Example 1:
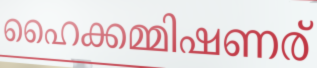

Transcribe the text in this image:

ഹൈക്കമ്മിഷണര്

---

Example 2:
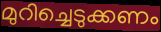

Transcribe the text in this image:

മുറിച്ചെടുക്കണം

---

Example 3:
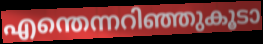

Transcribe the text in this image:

എന്തെന്നറിഞ്ഞുകൂടാ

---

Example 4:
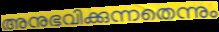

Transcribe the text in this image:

അനുഭവിക്കുന്നതെന്നും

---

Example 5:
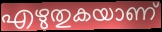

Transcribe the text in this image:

എഴുതുകയാണ്